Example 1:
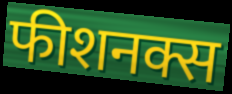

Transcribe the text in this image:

फीशनक्स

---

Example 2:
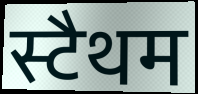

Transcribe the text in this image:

स्टैथम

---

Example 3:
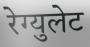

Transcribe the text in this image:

रेग्‍युलेट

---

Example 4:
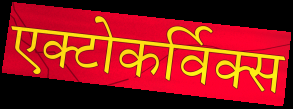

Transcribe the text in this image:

एक्टोकर्विक्स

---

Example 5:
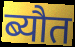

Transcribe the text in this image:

ब्यौत